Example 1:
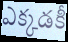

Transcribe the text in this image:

ఎక్కడకీ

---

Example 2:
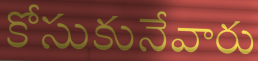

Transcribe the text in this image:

కోసుకునేవారు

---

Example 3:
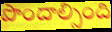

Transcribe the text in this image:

పొందాల్సింది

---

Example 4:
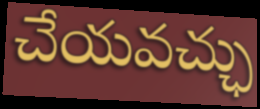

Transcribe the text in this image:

చేయవచ్ఛు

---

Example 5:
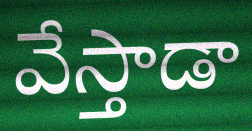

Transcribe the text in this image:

వేస్తాడా